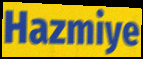
Hazmiye